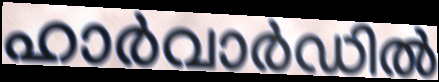
ഹാർവാർഡിൽ